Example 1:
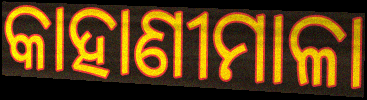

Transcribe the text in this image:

କାହାଣୀମାଳା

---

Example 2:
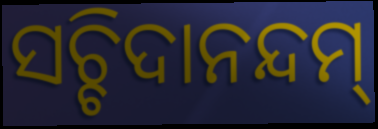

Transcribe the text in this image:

ସଚ୍ଚିଦାନନ୍ଦମ୍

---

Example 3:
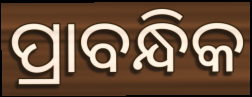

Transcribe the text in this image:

ପ୍ରାବନ୍ଧିକ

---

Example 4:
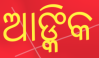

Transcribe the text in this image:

ଆଙ୍କିକ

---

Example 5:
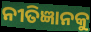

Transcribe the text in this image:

ନୀତିଜ୍ଞାନକୁ